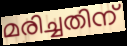
മരിച്ചതിന്